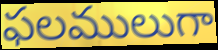
ఫలములుగా